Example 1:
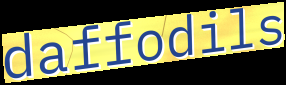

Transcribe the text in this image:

daffodils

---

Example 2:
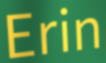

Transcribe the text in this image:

Erin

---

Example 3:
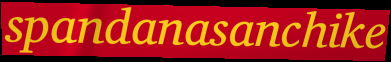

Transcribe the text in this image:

spandanasanchike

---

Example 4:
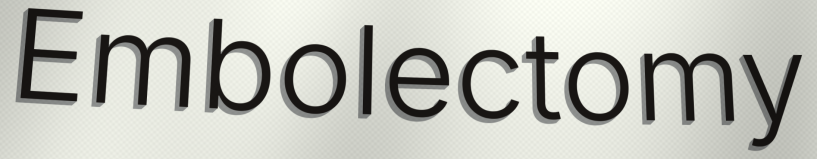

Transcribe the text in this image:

Embolectomy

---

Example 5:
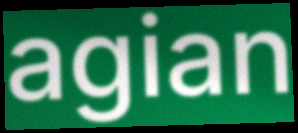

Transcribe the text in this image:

agian